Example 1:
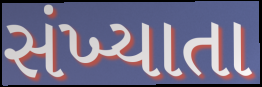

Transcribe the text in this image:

સંખ્યાતા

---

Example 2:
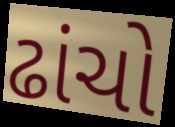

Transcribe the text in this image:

ઢાંચો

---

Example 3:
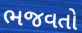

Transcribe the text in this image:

ભજવતો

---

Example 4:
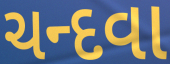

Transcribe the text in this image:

ચન્દવા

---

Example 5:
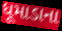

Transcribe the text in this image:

ધૂમાડાના